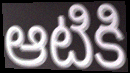
ఆటికి